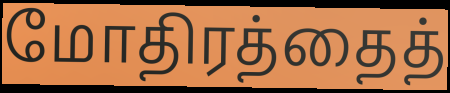
மோதிரத்தைத்